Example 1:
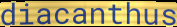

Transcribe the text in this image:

diacanthus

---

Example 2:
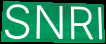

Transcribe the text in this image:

SNRI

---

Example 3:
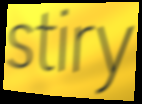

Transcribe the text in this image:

stiry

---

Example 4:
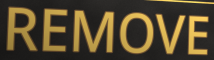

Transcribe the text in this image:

REMOVE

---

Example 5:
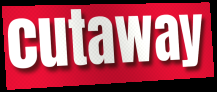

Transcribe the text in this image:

cutaway